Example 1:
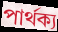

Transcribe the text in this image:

পাৰ্থক্য়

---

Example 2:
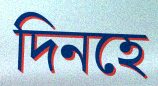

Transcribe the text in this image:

দিনহে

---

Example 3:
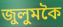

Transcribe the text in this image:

জুলুমকৈ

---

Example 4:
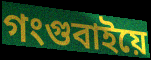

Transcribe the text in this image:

গংগুবাইয়ে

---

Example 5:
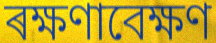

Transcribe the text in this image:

ৰক্ষণাবেক্ষণ